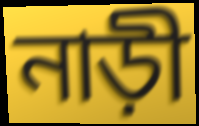
নাড়ী